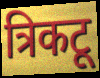
त्रिकटू